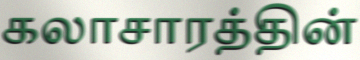
கலாசாரத்தின்